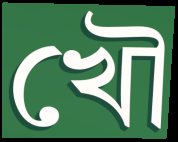
খৌ